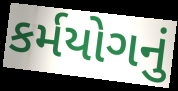
કર્મયોગનું